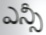
ఎన్సీ